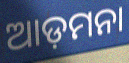
ଆଡ଼ମନା